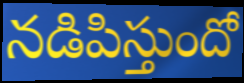
నడిపిస్తుందో